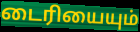
டைரியையும்